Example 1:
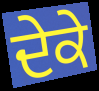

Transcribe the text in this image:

ਦੇਕੇ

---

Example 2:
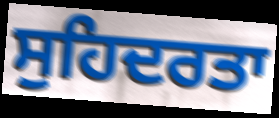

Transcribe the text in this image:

ਸੁਹਿਦਰਤਾ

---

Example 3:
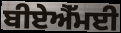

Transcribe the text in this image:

ਬੀਏਐੱਮਈ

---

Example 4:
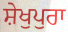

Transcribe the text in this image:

ਸ਼ੇਖੁਪੁਰਾ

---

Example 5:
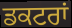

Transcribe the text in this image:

ਡਕਟਰਾਂ